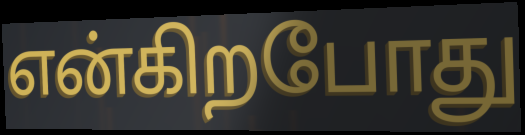
என்கிறபோது